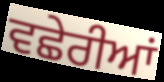
ਵਛੇਰੀਆਂ